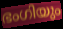
ഭംഗിയും